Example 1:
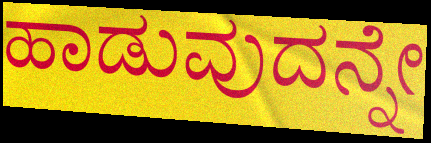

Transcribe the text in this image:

ಹಾಡುವುದನ್ನೇ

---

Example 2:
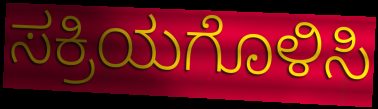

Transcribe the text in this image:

ಸಕ್ರಿಯಗೊಳಿಸಿ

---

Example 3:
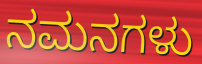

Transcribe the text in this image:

ನಮನಗಳು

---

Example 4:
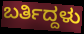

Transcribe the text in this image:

ಬರ್ತಿದ್ದಳು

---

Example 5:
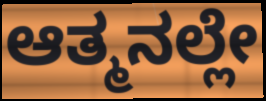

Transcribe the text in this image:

ಆತ್ಮನಲ್ಲೇ